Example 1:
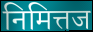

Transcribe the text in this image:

निमित्तज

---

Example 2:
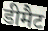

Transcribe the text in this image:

डीमैट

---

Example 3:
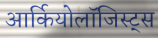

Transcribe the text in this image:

आर्कियोलॉजिस्ट्स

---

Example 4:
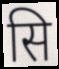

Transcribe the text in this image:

सि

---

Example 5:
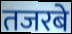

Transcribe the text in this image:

तजरबे